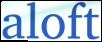
aloft